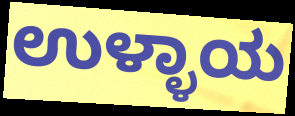
ಉಳ್ಳಾಯ